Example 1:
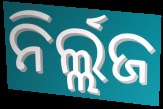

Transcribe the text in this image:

ନିର୍ଲ୍ଲଜ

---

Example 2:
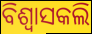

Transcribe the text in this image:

ବିଶ୍ଵାସକଲି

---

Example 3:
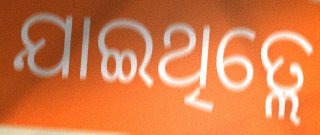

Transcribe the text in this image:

ଯାଇଥିତ୍ଲେ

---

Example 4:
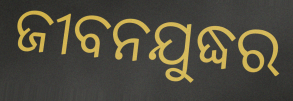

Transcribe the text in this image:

ଜୀବନଯୁଦ୍ଧର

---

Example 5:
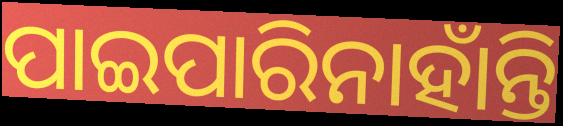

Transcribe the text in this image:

ପାଇପାରିନାହାଁନ୍ତି